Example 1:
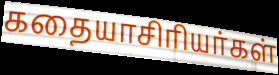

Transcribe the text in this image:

கதையாசிரியர்கள்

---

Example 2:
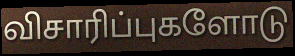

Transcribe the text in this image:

விசாரிப்புகளோடு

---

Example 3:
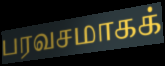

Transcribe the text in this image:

பரவசமாகக்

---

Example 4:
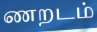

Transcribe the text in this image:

ணறடம்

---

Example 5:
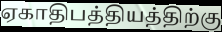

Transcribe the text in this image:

ஏகாதிபத்தியத்திற்கு